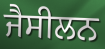
ਜੈਸੀਲਨ